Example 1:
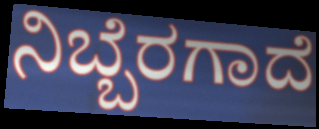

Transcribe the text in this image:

ನಿಬ್ಬೆರಗಾದೆ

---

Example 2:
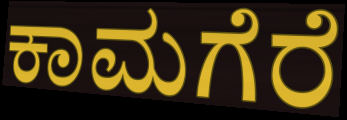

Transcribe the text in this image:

ಕಾಮಗೆರೆ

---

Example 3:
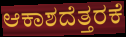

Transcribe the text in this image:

ಆಕಾಶದೆತ್ತರಕೆ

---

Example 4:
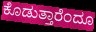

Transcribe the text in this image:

ಕೊಡುತ್ತಾರೆಂದೂ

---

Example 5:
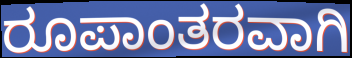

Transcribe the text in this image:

ರೂಪಾಂತರವಾಗಿ